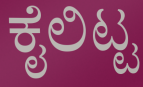
ಕೈಲಿಟ್ಟ